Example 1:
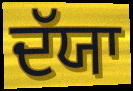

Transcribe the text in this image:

ਦੱਯਾ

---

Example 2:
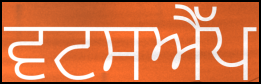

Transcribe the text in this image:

ਵਟਸਐੱਪ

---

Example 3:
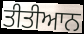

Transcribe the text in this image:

ਤੀਤੀਆਨ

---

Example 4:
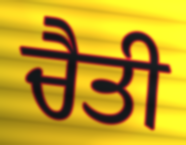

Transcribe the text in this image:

ਚੈਤੀ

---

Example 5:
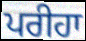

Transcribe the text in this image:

ਪਰੀਹਾ